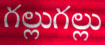
గల్లుగల్లు